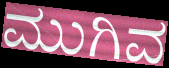
ಮುಗಿವ